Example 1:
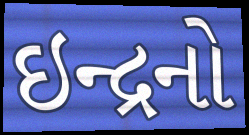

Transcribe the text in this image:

ઇન્દ્રનો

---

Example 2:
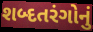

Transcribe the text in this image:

શબ્દતરંગોનું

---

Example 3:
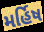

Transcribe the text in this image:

મર્હિષ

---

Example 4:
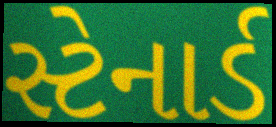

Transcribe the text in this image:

સ્ટેનાર્ડ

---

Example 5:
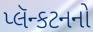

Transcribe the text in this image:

પ્લૅન્કટનનો